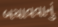
બચાવવાનું